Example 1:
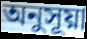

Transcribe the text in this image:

অনুসূয়া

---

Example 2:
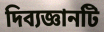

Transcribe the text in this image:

দিব্যজ্ঞানটি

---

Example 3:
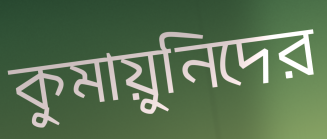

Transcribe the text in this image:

কুমায়ুনিদের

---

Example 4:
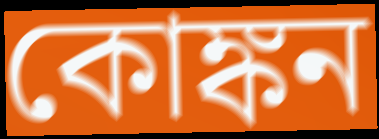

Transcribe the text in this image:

কোঙ্কন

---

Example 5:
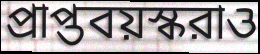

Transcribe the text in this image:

প্রাপ্তবয়স্করাও